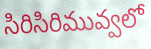
సిరిసిరిమువ్వలో